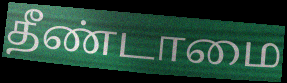
தீண்டாமை